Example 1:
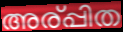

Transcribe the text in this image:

അര്പ്പിത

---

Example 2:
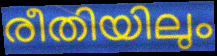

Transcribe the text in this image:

രീതിയിലും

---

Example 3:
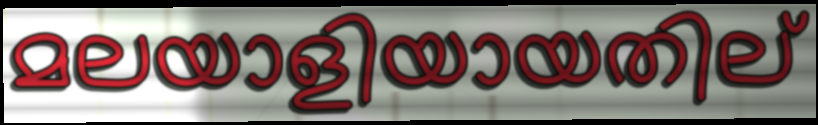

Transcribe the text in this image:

മലയാളിയായതില്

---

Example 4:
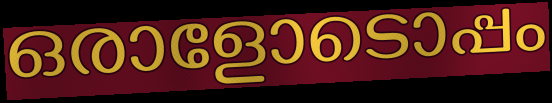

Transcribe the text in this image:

ഒരാളോടൊപ്പം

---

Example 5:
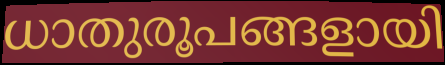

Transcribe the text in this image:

ധാതുരൂപങ്ങളായി